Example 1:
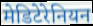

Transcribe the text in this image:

मेडिटेरेनियन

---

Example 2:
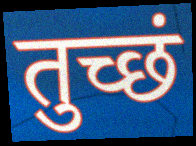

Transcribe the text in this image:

तुच्छं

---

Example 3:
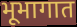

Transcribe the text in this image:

भूभागात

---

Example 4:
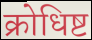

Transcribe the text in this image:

क्रोधिष्ट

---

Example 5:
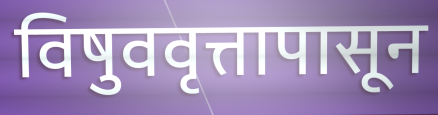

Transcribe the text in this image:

विषुववृत्तापासून